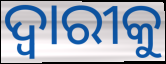
ଦ୍ଵାରୀକୁ